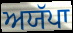
ਅਯੱਪਾ